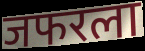
जफरला